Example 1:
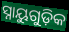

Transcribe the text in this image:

ସ୍ନାୟୁଗୁଡ଼ିକ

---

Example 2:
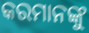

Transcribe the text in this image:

କରମାନଙ୍କୁ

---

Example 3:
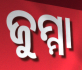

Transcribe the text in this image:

ଜୁମ୍ମା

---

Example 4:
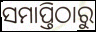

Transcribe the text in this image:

ସମାପ୍ତିଠାରୁ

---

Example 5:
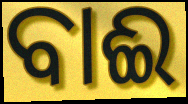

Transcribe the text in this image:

ବାଈ